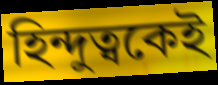
হিন্দুত্বকেই